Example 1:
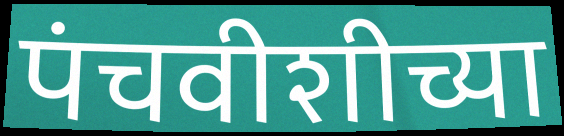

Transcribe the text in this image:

पंचवीशीच्या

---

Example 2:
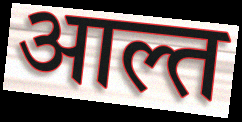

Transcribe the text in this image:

आल्त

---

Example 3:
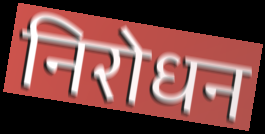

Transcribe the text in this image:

निरोधन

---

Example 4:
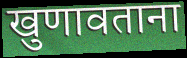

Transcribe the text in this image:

खुणावताना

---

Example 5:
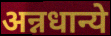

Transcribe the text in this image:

अन्नधान्ये